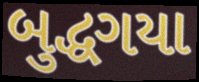
બુદ્ધગયા